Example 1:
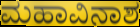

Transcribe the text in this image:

ಮಹಾವಿನಾಶ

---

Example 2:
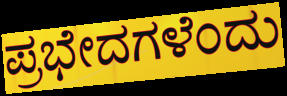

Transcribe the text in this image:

ಪ್ರಭೇದಗಳೆಂದು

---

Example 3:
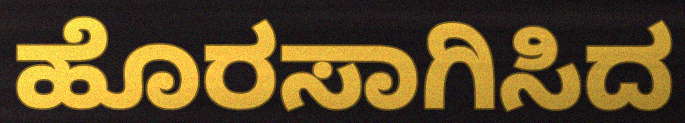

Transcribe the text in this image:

ಹೊರಸಾಗಿಸಿದ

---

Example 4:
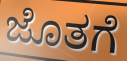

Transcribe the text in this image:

ಜೊತಗೆ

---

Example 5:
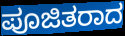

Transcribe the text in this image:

ಪೂಜಿತರಾದ